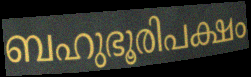
ബഹുഭൂരിപക്ഷം